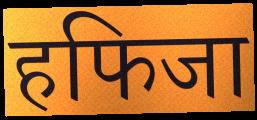
हफिजा